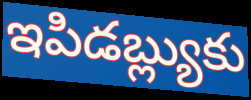
ఇపిడబ్ల్యుకు